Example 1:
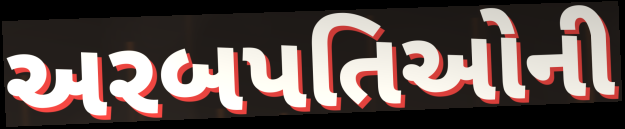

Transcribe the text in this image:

અરબપતિઓની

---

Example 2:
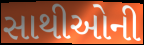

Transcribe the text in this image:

સાથીઓની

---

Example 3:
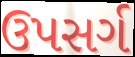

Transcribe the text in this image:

ઉપસર્ગ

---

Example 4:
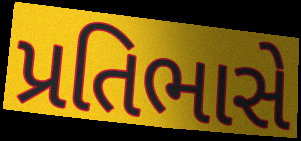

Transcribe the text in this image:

પ્રતિભાસે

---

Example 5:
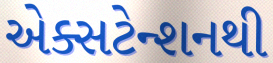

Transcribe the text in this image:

એક્સટેન્શનથી